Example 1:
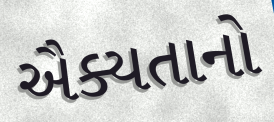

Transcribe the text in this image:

ઐક્યતાનો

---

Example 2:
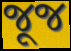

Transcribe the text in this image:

જૂજ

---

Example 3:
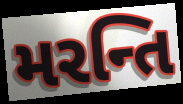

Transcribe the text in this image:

મરન્તિ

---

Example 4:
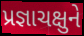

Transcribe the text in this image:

પ્રજ્ઞાચક્ષુને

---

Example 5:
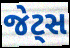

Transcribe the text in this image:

જેટ્સ